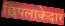
छिपलाकेदार